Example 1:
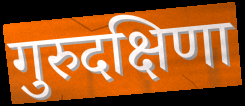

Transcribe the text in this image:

गुरुदक्षिणा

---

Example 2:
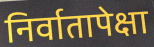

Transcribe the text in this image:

निर्वातापेक्षा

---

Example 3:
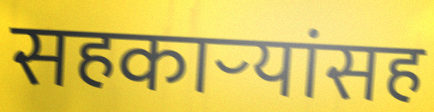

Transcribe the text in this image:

सहकाऱ्यांसह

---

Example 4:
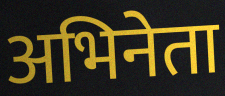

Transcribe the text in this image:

अभिनेता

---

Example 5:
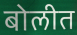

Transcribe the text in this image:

बोलीत